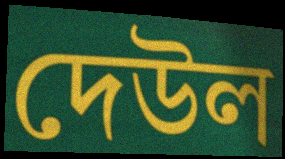
দেউল